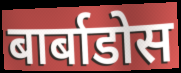
बार्बाडोस